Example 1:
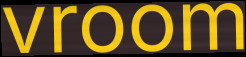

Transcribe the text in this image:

vroom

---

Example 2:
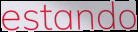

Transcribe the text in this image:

estando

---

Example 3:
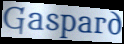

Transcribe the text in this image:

Gaspard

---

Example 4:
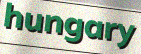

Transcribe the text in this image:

hungary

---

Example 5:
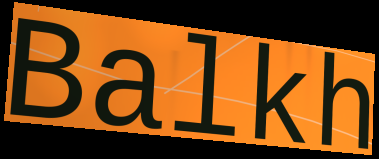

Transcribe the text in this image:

Balkh